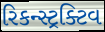
રિકન્સ્ટ્રક્ટિવ